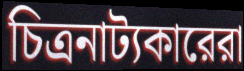
চিত্রনাট্যকারেরা